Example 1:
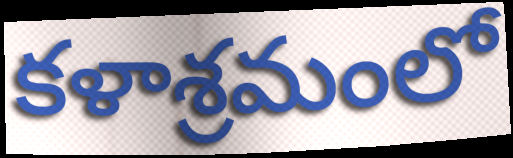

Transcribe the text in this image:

కళాశ్రమంలో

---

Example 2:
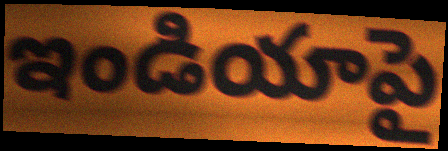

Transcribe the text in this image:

ఇండియాపై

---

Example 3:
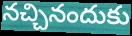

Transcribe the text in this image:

నచ్చినందుకు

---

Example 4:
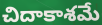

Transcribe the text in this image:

చిదాకాశమే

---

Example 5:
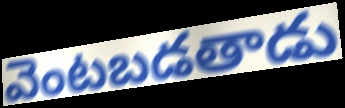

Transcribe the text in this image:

వెంటబడతాడు